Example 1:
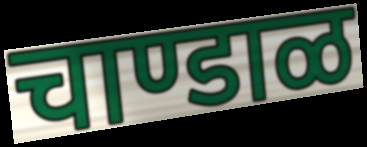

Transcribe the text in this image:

चाण्डाळ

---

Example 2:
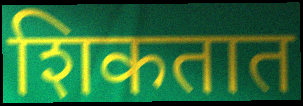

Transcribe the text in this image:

शिकतात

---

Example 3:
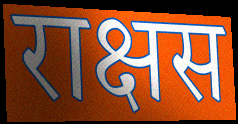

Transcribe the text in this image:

राक्षस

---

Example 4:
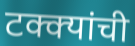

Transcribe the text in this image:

टक्क्यांची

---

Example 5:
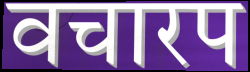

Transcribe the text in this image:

वचारप